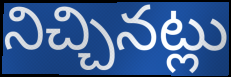
నిచ్చినట్లు